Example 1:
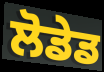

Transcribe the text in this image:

ਲੋਡੇਡ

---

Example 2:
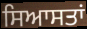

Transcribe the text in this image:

ਸਿਆਸਤਾਂ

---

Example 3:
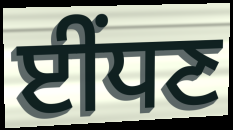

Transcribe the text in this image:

ਈਂਧਣ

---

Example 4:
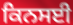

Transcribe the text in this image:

ਕਿਨਸਈ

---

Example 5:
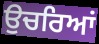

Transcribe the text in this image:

ਉਚਰਿਆਂ